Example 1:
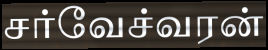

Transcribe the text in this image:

சர்வேச்வரன்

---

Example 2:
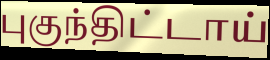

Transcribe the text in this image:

புகுந்திட்டாய்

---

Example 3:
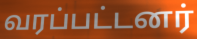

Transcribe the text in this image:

வரப்பட்டனர்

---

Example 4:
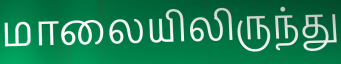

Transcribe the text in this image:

மாலையிலிருந்து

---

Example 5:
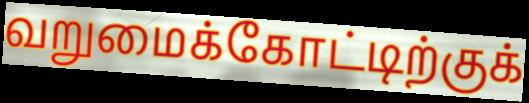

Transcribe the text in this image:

வறுமைக்கோட்டிற்குக்